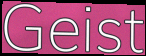
Geist